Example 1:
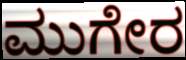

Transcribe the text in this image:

ಮುಗೇರ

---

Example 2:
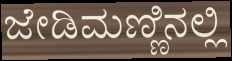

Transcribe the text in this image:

ಜೇಡಿಮಣ್ಣಿನಲ್ಲಿ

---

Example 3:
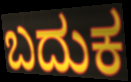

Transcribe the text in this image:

ಬದುಕ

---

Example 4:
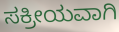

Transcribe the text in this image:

ಸಕ್ರೀಯವಾಗಿ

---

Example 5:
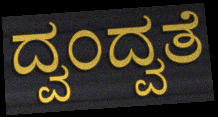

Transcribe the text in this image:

ದ್ವಂದ್ವತೆ